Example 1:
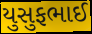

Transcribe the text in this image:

યુસુફભાઈ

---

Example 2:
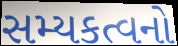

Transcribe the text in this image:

સમ્યકત્વનો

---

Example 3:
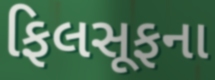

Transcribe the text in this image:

ફિલસૂફના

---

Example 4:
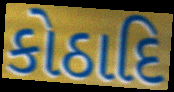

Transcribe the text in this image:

કોઠાદિ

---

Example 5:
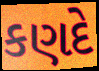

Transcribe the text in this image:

કણદે